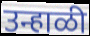
उन्हाळी